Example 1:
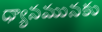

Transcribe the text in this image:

ధ్యానమునకు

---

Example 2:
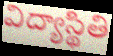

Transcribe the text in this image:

విద్యాస్థితి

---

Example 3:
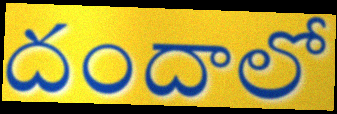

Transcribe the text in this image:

దందాలో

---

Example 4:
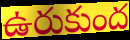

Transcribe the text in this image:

ఉరుకుంద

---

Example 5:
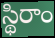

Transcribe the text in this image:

స్థిరాం